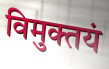
विमुक्तयं